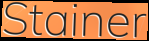
Stainer